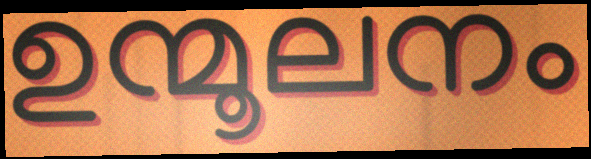
ഉന്മൂലനം